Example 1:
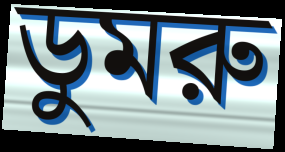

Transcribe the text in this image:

ডুমরু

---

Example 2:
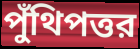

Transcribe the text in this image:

পুঁথিপত্তর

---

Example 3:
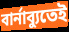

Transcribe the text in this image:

বার্নাব্যুতেই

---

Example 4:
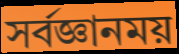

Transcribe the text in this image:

সর্বজ্ঞানময়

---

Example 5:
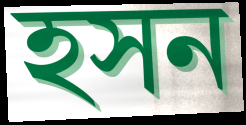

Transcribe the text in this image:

হসন